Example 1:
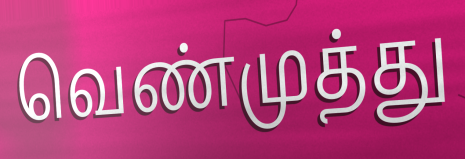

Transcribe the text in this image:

வெண்முத்து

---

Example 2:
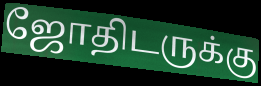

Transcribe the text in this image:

ஜோதிடருக்கு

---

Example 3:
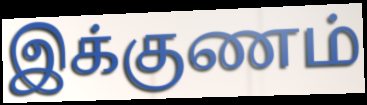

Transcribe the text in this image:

இக்குணம்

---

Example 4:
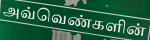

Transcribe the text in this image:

அவ்வெண்களின்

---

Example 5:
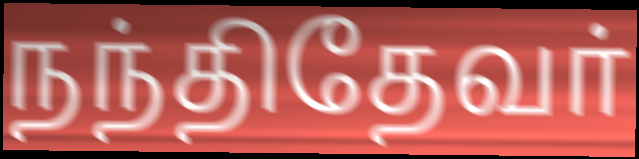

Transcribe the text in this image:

நந்திதேவர்